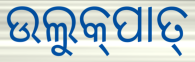
ଉଲୁକ୍‌ପାତ୍